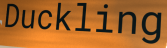
Duckling